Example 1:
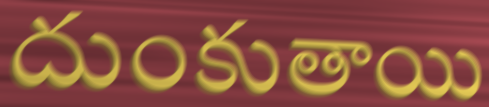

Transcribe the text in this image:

దుంకుతాయి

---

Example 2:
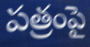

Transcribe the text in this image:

పత్రంపై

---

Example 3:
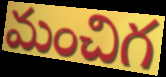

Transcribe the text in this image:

మంచిగ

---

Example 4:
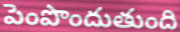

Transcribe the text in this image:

పెంపొందుతుంది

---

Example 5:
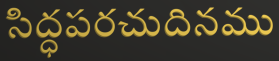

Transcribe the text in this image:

సిద్ధపరచుదినము